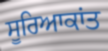
ਸੂਰਿਆਕਾਂਤ